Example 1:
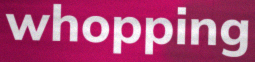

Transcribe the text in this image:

whopping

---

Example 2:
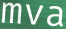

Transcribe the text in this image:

mva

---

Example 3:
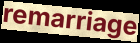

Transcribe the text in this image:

remarriage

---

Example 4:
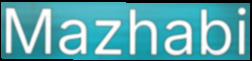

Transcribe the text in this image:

Mazhabi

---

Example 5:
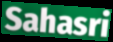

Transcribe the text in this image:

Sahasri